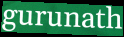
gurunath